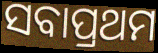
ସବାପ୍ରଥମ